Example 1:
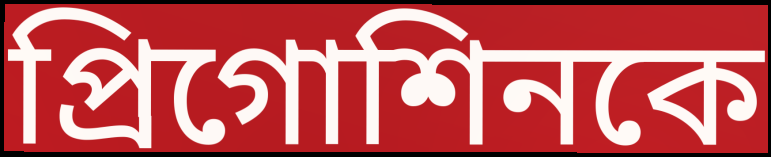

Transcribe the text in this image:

প্রিগোশিনকে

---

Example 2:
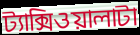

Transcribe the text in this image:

ট্যাক্সিওয়ালাটা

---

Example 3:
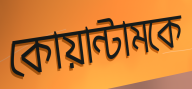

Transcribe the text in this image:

কোয়ান্টামকে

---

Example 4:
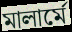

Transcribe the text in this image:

মালার্মে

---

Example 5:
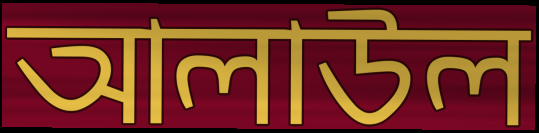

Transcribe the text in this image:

আলাউল